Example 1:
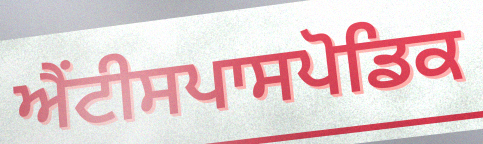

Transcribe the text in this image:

ਐਂਟੀਸਪਾਸਪੋਡਿਕ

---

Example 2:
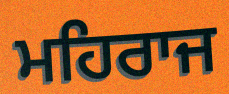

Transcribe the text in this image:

ਮਹਿਰਾਜ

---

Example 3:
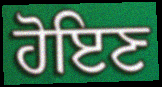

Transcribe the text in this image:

ਹੋਇਣ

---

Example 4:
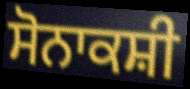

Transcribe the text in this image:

ਸੋਨਾਕਸ਼ੀ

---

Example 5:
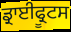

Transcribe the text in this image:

ਡ੍ਰਾਈਫ੍ਰੂਟਸ